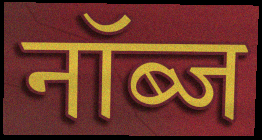
नॉब्ज